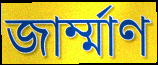
জার্ম্মাণ